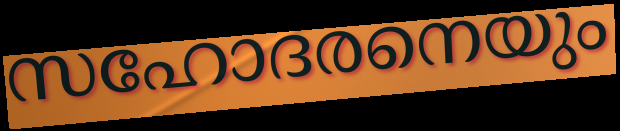
സഹോദരനെയും